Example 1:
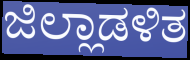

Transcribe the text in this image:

ಜಿಲ್ಲಾಡಳಿತ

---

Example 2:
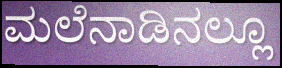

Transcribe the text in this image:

ಮಲೆನಾಡಿನಲ್ಲೂ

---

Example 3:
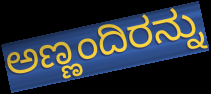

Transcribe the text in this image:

ಅಣ್ಣಂದಿರನ್ನು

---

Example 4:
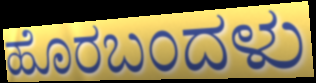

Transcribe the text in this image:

ಹೊರಬಂದಳು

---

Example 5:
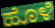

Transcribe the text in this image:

ಹೊಳಿ